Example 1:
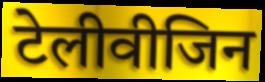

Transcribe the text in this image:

टेलीवीजिन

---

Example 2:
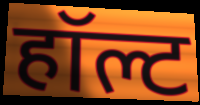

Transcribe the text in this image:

हॉल्ट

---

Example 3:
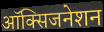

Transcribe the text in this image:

ऑक्सिजनेशन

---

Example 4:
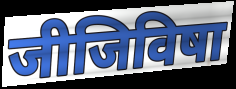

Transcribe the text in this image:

जीजिविषा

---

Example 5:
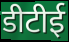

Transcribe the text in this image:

डीटीई